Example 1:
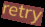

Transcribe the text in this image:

retry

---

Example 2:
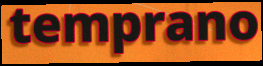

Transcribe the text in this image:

temprano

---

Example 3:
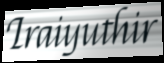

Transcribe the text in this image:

Iraiyuthir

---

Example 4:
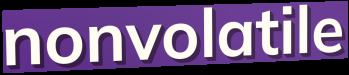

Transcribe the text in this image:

nonvolatile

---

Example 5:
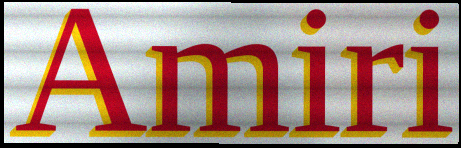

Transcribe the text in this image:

Amiri